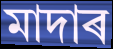
মাদাৰ